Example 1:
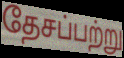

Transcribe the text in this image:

தேசப்பற்று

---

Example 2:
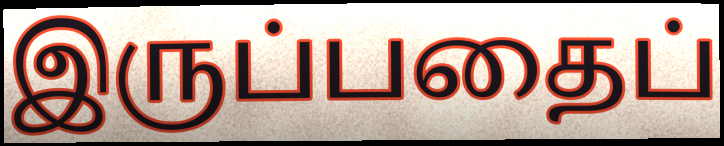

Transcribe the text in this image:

இருப்பதைப்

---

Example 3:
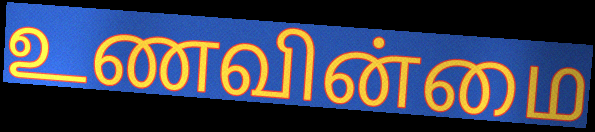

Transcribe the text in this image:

உணவின்மை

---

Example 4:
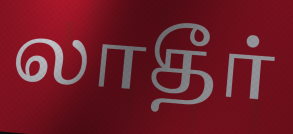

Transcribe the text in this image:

லாதீர்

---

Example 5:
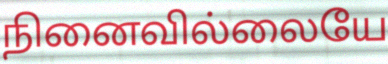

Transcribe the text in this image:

நினைவில்லையே